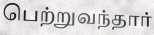
பெற்றுவந்தார்